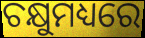
ଚକ୍ଷୁମଧ୍ଯରେ